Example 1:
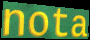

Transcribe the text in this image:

nota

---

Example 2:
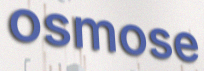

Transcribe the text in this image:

osmose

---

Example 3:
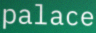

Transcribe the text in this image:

palace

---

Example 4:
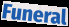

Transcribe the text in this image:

Funeral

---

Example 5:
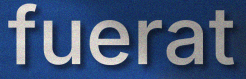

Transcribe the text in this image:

fuerat